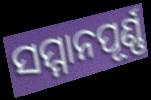
ସମ୍ମାନପୂର୍ଣ୍ଣ